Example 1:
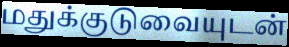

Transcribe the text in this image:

மதுக்குடுவையுடன்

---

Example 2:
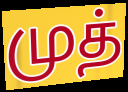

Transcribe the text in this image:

முத்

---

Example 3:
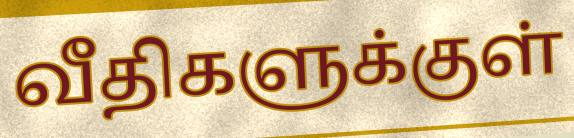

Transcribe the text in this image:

வீதிகளுக்குள்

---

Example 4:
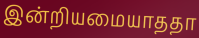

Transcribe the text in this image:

இன்றியமையாததா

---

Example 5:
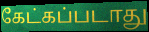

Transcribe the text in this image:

கேட்கப்படாது